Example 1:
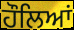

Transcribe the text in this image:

ਹੌਲਿਆਂ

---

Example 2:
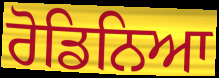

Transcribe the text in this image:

ਰੋਡਿਨਿਆ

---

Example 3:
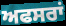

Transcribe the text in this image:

ਅਫਸਰਾਂ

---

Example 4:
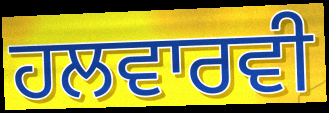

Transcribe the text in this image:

ਹਲਵਾਰਵੀ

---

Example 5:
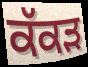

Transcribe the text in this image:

ਕੱਕੜ